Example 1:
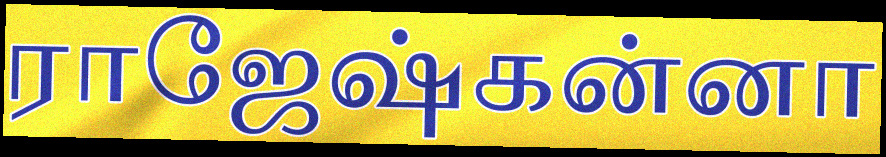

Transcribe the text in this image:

ராஜேஷ்கன்னா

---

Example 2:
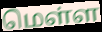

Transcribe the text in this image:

மெள்ள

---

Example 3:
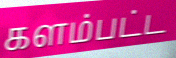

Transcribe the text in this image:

களம்பட்ட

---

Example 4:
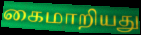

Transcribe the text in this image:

கைமாறியது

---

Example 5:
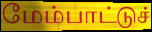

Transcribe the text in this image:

மேம்பாட்டுச்